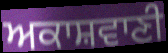
ਅਕਾਸ਼ਵਾਣੀ